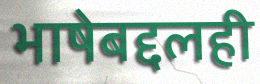
भाषेबद्दलही